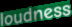
loudness